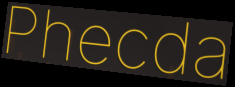
Phecda